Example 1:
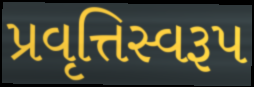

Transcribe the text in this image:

પ્રવૃત્તિસ્વરૂપ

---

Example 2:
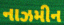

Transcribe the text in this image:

નાઝમીન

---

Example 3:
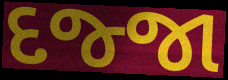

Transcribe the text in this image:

દજ્જા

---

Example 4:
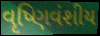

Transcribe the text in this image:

વૃષ્ણિવંશીય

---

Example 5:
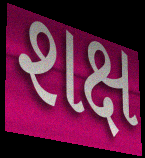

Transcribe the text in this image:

શક્ષ